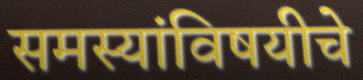
समस्यांविषयीचे